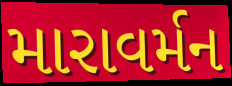
મારાવર્મન